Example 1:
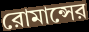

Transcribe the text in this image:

রোমান্সের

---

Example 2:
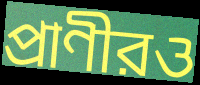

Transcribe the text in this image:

প্রাণীরও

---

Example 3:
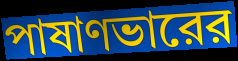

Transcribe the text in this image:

পাষাণভারের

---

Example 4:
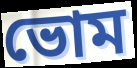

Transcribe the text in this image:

ভোম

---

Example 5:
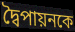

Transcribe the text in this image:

দ্বৈপায়নকে